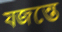
যজন্তে